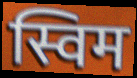
स्विम